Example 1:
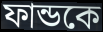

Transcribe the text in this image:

ফান্ডকে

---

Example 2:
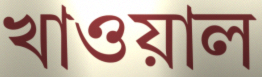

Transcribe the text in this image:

খাওয়াল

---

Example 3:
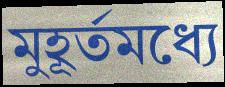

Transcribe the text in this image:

মুহূর্তমধ্যে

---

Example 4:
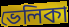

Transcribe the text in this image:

ভেলিকা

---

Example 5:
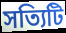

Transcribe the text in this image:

সত্যিটি